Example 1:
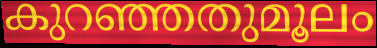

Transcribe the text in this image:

കുറഞ്ഞതുമൂലം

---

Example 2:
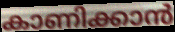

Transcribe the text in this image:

കാണിക്കാൻ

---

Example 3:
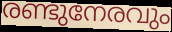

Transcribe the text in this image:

രണ്ടുനേരവും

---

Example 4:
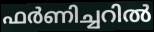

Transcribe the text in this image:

ഫർണിച്ചറിൽ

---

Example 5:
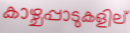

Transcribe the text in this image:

കാഴ്ചപ്പാടുകളില്